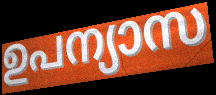
ഉപന്യാസ